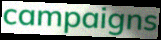
campaigns